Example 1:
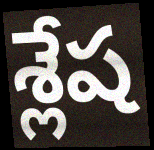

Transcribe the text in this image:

శ్లేష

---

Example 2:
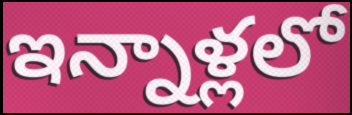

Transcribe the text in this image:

ఇన్నాళ్లలో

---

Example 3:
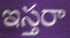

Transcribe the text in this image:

ఇస్తరా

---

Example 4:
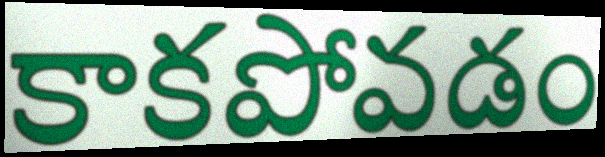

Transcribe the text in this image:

కాకపోవడం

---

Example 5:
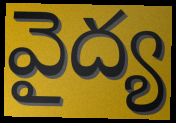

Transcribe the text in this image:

వైద్య